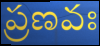
ప్రణవః